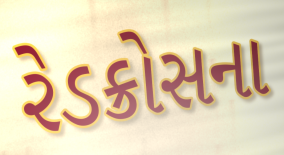
રેડક્રોસના